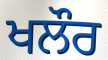
ਖਲੌਰ